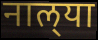
नाल्या